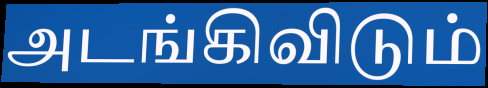
அடங்கிவிடும்